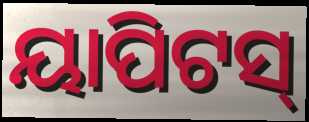
ୟାପିଟସ୍